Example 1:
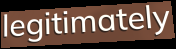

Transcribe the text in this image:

legitimately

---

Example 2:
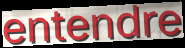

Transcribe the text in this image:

entendre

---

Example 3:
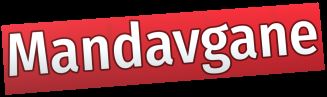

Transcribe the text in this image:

Mandavgane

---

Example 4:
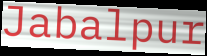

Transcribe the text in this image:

Jabalpur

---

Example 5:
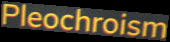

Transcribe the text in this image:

Pleochroism